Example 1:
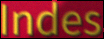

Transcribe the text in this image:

Indes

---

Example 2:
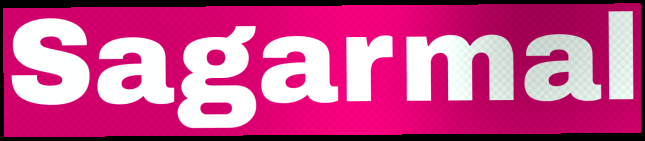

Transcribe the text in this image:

Sagarmal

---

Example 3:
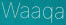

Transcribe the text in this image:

Waaqa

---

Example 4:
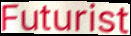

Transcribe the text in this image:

Futurist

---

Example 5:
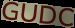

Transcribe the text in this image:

GUDC